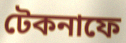
টেকনাফে